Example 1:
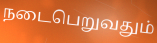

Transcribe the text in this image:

நடைபெறுவதும்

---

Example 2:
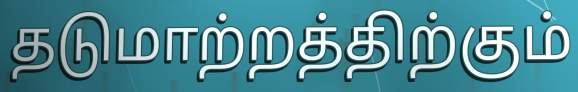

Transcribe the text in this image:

தடுமாற்றத்திற்கும்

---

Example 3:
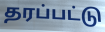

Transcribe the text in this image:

தரப்பட்டு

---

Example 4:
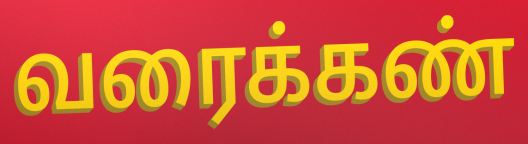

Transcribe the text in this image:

வரைக்கண்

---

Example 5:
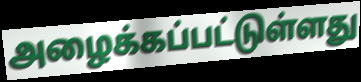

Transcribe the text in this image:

அழைக்கப்பட்டுள்ளது